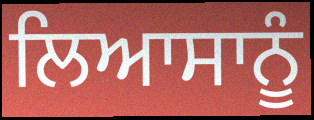
ਲਿਆਸਾਨੂੰ